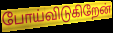
போய்விடுகிறேன்